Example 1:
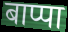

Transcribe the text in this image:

बाप्पा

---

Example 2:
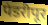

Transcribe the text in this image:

पंडरीपूर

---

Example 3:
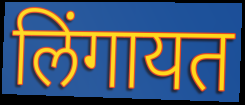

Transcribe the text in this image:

लिंगायत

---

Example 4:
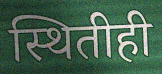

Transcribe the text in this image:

स्थितीही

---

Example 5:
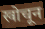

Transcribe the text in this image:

खोचून